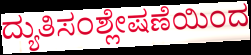
ದ್ಯುತಿಸಂಶ್ಲೇಷಣೆಯಿಂದ